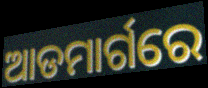
ଆଡମାର୍ଗରେ